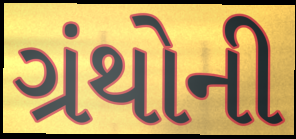
ગ્રંથોની